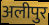
अलीपुर